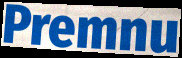
Premnu